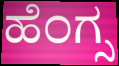
ಹೆಂಗ್ಸ